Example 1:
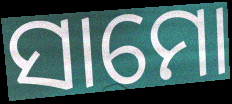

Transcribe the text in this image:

ସାମୋ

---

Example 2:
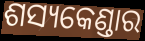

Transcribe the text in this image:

ଶସ୍ୟକେଣ୍ଡାର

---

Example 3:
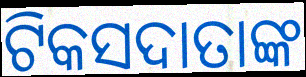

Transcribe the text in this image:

ଟିକସଦାତାଙ୍କ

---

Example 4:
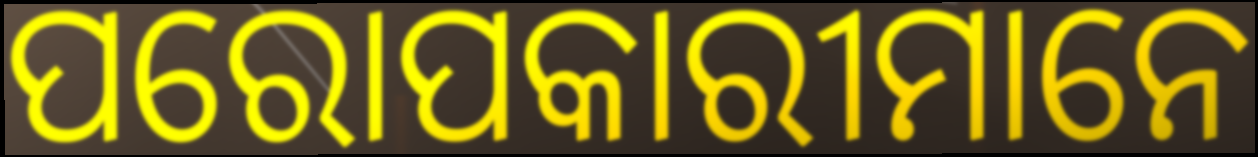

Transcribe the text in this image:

ପରୋପକାରୀମାନେ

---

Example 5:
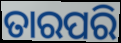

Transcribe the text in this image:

ତାରପରି